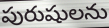
పురుషులను